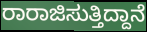
ರಾರಾಜಿಸುತ್ತಿದ್ದಾನೆ